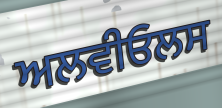
ਅਲਵੀਓਲਸ